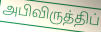
அபிவிருத்திப்